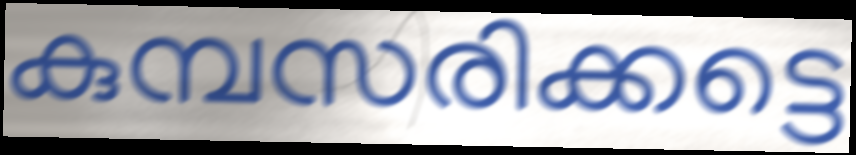
കുമ്പസരിക്കട്ടെ